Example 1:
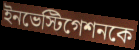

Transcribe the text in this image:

ইনভেস্টিগেশনকে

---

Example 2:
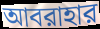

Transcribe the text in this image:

আবরাহার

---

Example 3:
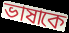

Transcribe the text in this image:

ভাষাকে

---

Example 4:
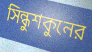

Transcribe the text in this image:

সিন্ধুশকুনের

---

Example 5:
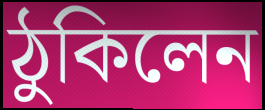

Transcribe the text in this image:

ঠুকিলেন